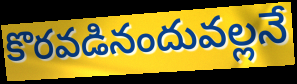
కొరవడినందువల్లనే